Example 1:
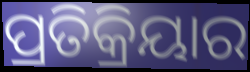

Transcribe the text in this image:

ପ୍ରତିକ୍ରିୟାର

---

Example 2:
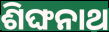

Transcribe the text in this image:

ଶିଙ୍ଘନାଥ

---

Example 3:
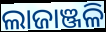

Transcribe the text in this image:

ଲାଜାଞ୍ଜଳି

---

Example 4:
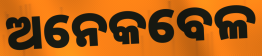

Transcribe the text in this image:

ଅନେକବେଳ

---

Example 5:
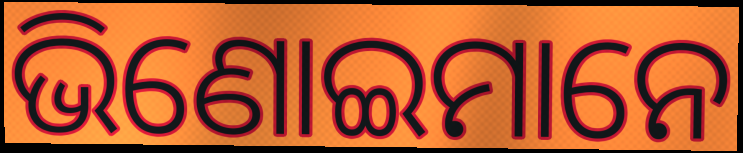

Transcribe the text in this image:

ଭିଣୋଇମାନେ